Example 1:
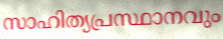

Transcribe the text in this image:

സാഹിത്യപ്രസ്ഥാനവും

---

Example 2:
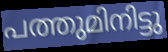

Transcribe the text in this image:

പത്തുമിനിട്ടു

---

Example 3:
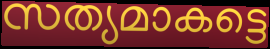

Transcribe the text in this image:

സത്യമാകട്ടെ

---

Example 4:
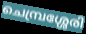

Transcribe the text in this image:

ചെമ്പ്രശ്ശേരി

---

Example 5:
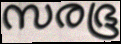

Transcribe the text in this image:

സരഭൂ